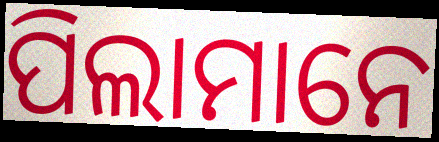
ପିଲାମାନେ